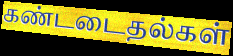
கண்டடைதல்கள்